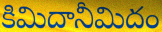
కిమిదానీమిదం